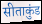
सीताकुंड